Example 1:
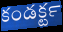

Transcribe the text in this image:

కండక్టర్‍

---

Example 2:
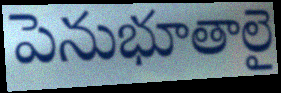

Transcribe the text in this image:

పెనుభూతాలై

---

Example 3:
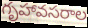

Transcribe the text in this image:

గృహావసరాల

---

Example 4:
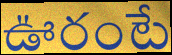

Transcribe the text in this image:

ఊరంటే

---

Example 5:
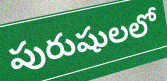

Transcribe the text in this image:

పురుషులలో